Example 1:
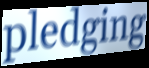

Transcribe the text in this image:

pledging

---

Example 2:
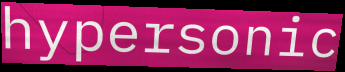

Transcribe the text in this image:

hypersonic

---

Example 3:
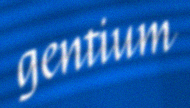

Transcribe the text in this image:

gentium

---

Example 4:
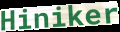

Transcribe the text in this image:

Hiniker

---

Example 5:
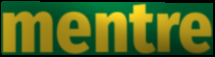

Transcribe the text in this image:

mentre